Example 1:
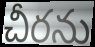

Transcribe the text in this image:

చీరను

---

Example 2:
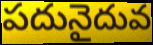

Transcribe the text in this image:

పదునైదువ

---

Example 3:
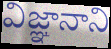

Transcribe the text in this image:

విజ్ఞానాని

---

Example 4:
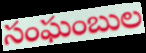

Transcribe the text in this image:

సంఘంబుల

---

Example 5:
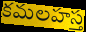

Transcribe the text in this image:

కమలహస్త